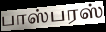
பாஸ்பரஸ்